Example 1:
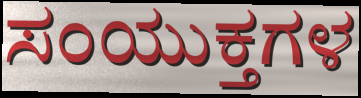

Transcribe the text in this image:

ಸಂಯುಕ್ತಗಳ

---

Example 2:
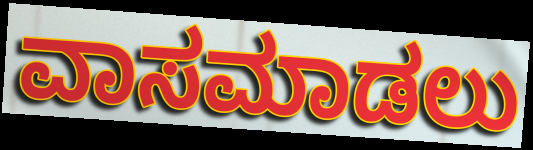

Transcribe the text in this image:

ವಾಸಮಾಡಲು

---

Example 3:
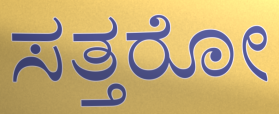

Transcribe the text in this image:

ಸತ್ತರೋ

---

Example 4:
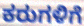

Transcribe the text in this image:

ಕರುಗಳಿಗೆ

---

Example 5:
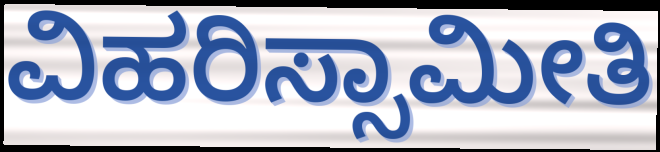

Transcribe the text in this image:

ವಿಹರಿಸ್ಸಾಮೀತಿ